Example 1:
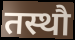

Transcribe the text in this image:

तस्थौ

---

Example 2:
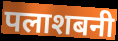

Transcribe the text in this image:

पलाशबनी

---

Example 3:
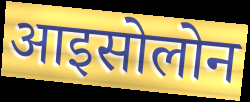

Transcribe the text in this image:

आइसोलोन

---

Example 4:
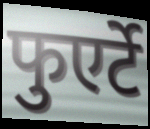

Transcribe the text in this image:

फुएर्टे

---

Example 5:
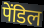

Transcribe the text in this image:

पेंडिल